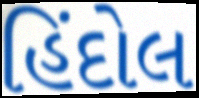
હિંદોલ